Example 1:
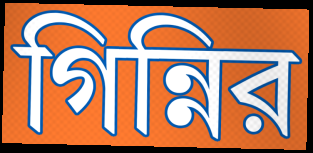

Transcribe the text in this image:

গিন্নির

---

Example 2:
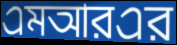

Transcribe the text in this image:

এমআরএর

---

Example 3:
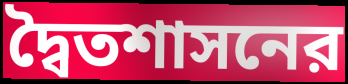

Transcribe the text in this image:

দ্বৈতশাসনের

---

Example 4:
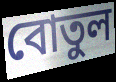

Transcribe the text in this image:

বোতুল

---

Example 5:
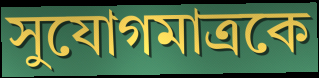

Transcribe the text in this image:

সুযোগমাত্রকে